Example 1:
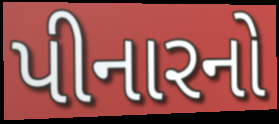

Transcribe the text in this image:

પીનારનો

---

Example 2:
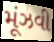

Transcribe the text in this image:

મૂંઝવી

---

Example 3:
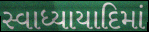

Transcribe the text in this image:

સ્વાધ્યાયાદિમાં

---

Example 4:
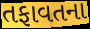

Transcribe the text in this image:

તફાવતના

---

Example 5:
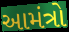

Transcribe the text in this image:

આમંત્રો